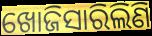
ଖୋଜିସାରିଲିଣି